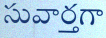
సువార్తగా